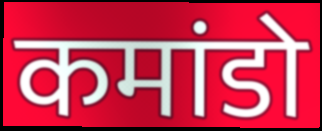
कमांडो